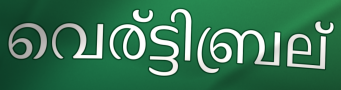
വെര്ട്ടിബ്രല്